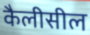
कैलीसील